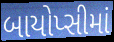
બાયોપ્સીમાં